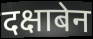
दक्षाबेन